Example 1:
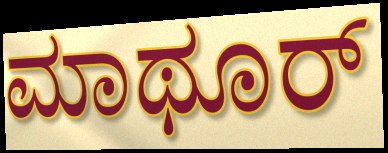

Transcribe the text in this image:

ಮಾಥೂರ್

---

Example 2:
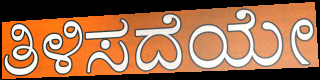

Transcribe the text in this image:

ತಿಳಿಸದೆಯೇ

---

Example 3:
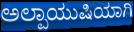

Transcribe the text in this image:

ಅಲ್ಪಾಯುಷಿಯಾಗಿ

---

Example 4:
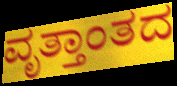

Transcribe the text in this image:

ವೃತ್ತಾಂತದ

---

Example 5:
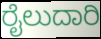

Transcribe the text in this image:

ರೈಲುದಾರಿ